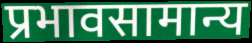
प्रभावसामान्य